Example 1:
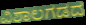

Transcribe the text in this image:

ವಿಶಾಲಗಡದ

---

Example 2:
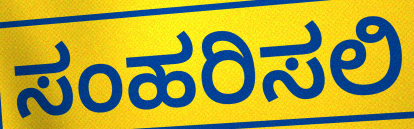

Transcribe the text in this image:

ಸಂಹರಿಸಲಿ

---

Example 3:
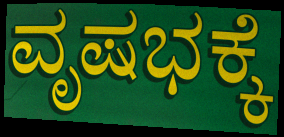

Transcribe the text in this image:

ವೃಷಭಕ್ಕೆ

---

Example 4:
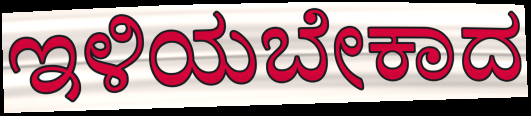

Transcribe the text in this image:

ಇಳಿಯಬೇಕಾದ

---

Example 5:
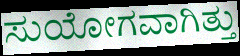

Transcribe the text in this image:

ಸುಯೋಗವಾಗಿತ್ತು